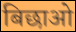
बिछाओ